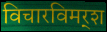
विचारविमर्श